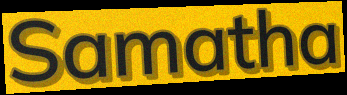
Samatha